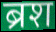
ब्रश